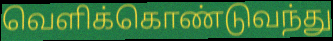
வெளிக்கொண்டுவந்து